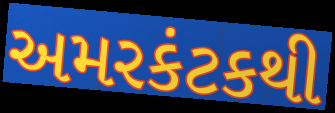
અમરકંટકથી